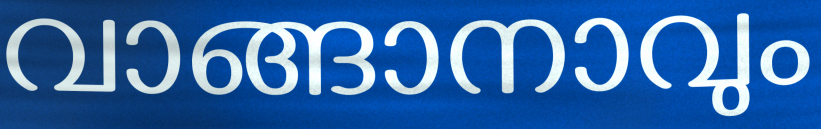
വാങ്ങാനാവും